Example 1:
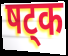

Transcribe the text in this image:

षट्क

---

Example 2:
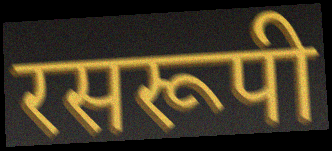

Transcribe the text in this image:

रसरूपी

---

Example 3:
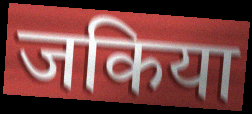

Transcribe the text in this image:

जकिया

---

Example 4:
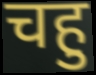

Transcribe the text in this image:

चहु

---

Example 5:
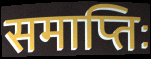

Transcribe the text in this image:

समाप्तिः